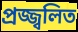
প্রজ্জ্বলিত